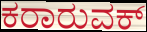
ಕರಾರುವಕ್